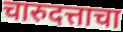
चारुदत्ताचा